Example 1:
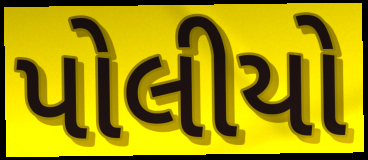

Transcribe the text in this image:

પોલીયો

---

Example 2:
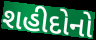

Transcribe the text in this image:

શહીદોનો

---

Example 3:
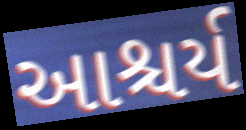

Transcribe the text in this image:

આશ્ચર્ય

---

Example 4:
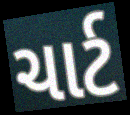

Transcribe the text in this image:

ચાર્ટ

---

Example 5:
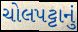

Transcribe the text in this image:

ચોલપટ્ટાનું